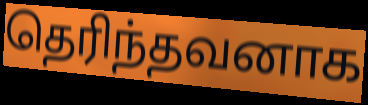
தெரிந்தவனாக